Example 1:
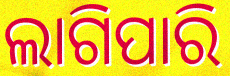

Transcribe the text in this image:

ଲାଗିପାରି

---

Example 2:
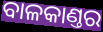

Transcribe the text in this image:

ବାଳକାଣ୍ତର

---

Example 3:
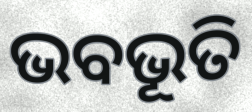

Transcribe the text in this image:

ଭବଭୂତି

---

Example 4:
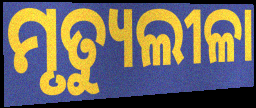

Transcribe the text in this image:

ମୃତ୍ୟୁଲୀଳା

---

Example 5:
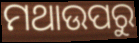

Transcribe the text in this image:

ମଥାଉପରୁ